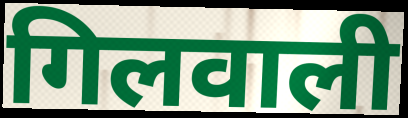
गिलवाली